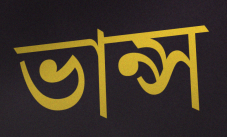
ভান্স